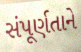
સંપૂર્ણતાને